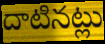
దాటినట్లు